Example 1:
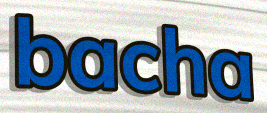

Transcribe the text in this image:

bacha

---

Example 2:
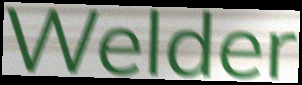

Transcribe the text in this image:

Welder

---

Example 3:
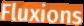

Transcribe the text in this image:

Fluxions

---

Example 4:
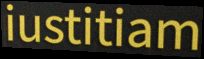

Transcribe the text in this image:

iustitiam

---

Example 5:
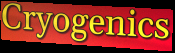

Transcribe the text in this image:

Cryogenics